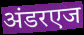
अंडरएज